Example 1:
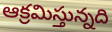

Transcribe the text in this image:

ఆక్రమిస్తున్నది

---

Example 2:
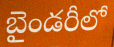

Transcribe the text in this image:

బైండరీలో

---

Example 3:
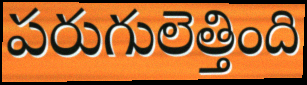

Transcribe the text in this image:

పరుగులెత్తింది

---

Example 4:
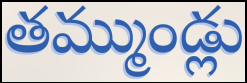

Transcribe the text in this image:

తమ్ముండ్లు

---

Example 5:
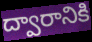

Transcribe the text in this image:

ద్వారానికి